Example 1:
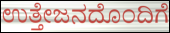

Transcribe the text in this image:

ಉತ್ತೇಜನದೊಂದಿಗೆ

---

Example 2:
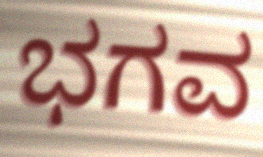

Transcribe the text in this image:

ಭಗವ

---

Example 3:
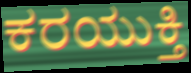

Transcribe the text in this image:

ಕರಯುಕ್ತಿ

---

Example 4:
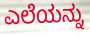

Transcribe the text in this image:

ಎಲೆಯನ್ನು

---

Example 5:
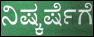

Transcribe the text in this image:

ನಿಷ್ಕರ್ಷೆಗೆ